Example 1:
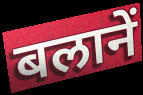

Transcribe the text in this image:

बलानें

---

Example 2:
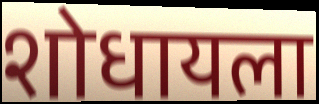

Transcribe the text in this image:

शोधायला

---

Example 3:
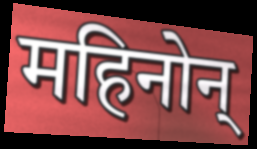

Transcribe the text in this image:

महिनोन्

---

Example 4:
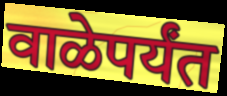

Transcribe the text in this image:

वाळेपर्यंत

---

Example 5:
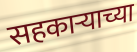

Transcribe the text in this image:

सहकार्‍याच्या